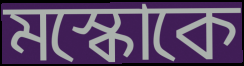
মস্কোকে